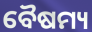
ବୈଷମ୍ୟ